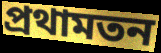
প্রথামতন